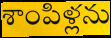
శాంపిళ్లను